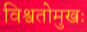
विश्वतोमुखः